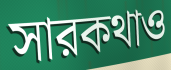
সারকথাও